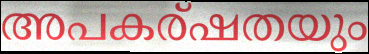
അപകര്ഷതയും